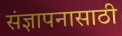
संज्ञापनासाठी